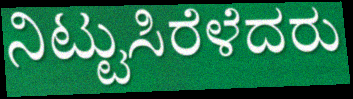
ನಿಟ್ಟುಸಿರೆಳೆದರು